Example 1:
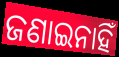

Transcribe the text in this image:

ଜଣାଇନାହିଁ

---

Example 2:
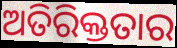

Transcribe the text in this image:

ଅତିରିକ୍ତତାର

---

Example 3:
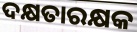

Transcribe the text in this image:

ଦକ୍ଷତାରକ୍ଷକ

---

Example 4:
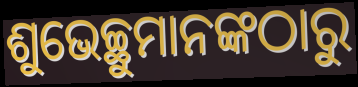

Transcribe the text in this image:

ଶୁଭେଚ୍ଛୁମାନଙ୍କଠାରୁ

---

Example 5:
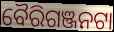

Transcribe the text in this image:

ବୈରିଗଞ୍ଜନଟା